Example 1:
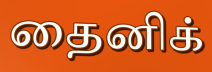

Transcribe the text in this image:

தைனிக்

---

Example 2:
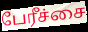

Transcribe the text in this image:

பேரீச்சை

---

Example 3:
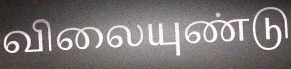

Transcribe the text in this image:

விலையுண்டு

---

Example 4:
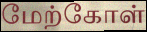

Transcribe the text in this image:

மேற்கோள்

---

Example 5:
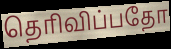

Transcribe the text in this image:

தெரிவிப்பதோ